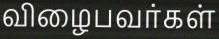
விழைபவர்கள்